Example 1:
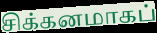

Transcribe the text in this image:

சிக்கனமாகப்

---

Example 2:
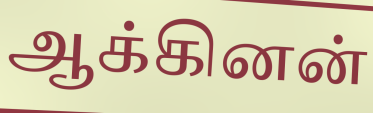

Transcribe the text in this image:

ஆக்கினன்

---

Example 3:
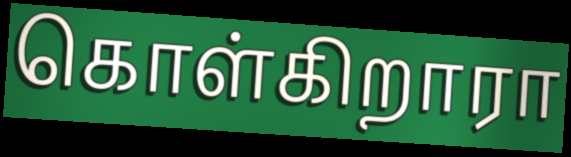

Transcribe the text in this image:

கொள்கிறாரா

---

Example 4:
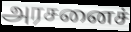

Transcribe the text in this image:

அரசனைச்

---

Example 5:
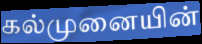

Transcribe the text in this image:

கல்முனையின்